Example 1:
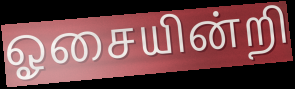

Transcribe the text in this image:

ஓசையின்றி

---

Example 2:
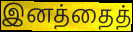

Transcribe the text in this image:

இனத்தைத்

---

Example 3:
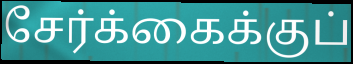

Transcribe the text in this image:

சேர்க்கைக்குப்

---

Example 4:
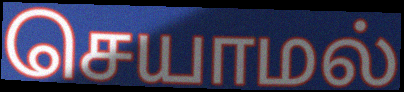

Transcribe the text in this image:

செயாமல்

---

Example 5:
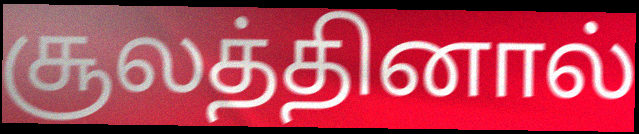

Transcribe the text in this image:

சூலத்தினால்